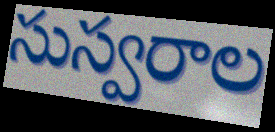
సుస్వరాల